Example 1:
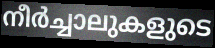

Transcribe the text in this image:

നീർച്ചാലുകളുടെ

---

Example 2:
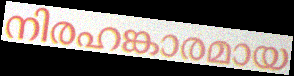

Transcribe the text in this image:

നിരഹങ്കാരമായ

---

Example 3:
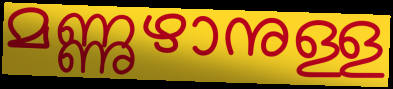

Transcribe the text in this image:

മണ്ണുഴാനുള്ള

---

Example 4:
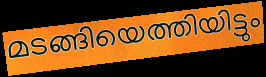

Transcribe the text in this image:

മടങ്ങിയെത്തിയിട്ടും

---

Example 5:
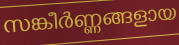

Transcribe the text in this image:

സങ്കീർണ്ണങ്ങളായ